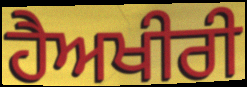
ਹੈਅਖੀਰੀ